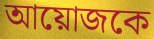
আয়োজকে